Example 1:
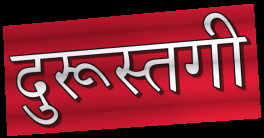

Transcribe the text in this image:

दुरूस्तगी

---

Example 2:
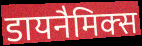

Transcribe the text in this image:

डायनैमिक्‍स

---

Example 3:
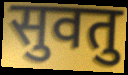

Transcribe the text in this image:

सुवतु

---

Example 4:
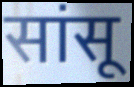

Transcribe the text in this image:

सांसू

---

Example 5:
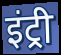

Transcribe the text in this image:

इंट्री